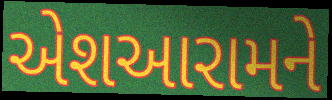
એશઆરામને